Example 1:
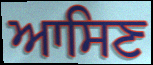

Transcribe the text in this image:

ਆਸਿਣ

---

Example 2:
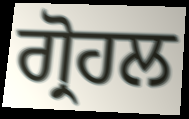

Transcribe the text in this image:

ਗ੍ਰੋਹਲ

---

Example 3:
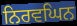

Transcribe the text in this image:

ਨਿਰਵਘਿਨ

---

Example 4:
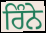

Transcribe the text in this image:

ਰਿੰਨੇ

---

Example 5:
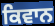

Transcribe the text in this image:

ਕਿਵਾਨ